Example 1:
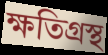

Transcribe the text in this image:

ক্ষতিগ্ৰস্থ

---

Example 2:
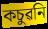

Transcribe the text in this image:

কচুৱনি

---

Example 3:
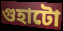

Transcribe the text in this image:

গুহাটো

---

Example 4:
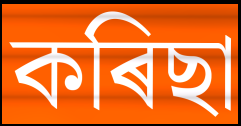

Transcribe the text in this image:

কৰিছা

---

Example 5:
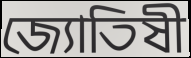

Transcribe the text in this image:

জ্যোতিষী